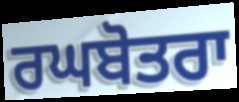
ਰਘਬੋਤਰਾ